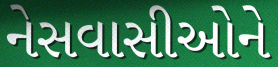
નેસવાસીઓને